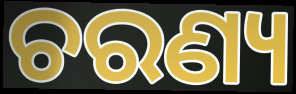
ଚରଣ୍ୟ